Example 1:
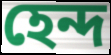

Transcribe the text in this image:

হেন্দ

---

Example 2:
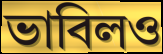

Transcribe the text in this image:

ভাবিলও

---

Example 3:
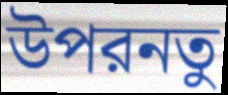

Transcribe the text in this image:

উপরনতু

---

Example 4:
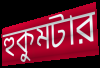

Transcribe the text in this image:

হুকুমটার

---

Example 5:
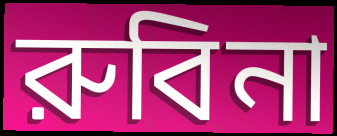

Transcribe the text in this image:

রুবিনা